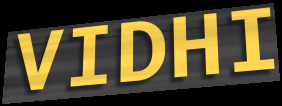
VIDHI